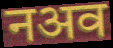
नअव